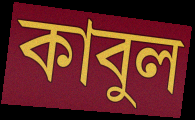
কাবুল